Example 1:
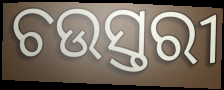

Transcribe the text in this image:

ଚଉସ୍ତରୀ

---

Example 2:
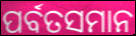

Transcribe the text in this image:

ପର୍ବତସମାନ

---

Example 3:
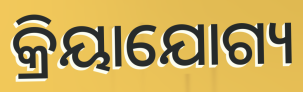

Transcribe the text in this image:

କ୍ରିୟାଯୋଗ୍ୟ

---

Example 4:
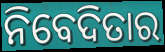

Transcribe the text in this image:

ନିବେଦିତାର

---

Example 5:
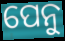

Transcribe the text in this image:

ପେନୁ